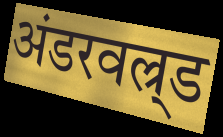
अंडरवल्र्ड